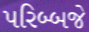
પરિબ્બજે